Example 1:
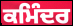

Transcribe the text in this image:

ਕਮਿੰਦਰ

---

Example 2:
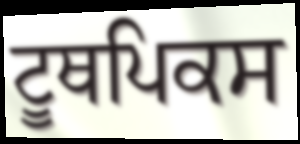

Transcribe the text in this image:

ਟੂਥਪਿਕਸ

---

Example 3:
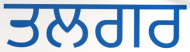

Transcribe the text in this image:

ਤਲਗਰ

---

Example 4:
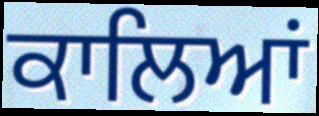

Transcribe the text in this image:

ਕਾਲਿਆਂ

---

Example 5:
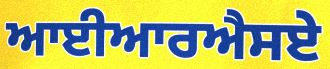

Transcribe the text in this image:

ਆਈਆਰਐਸਏ